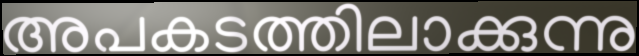
അപകടത്തിലാക്കുന്നു